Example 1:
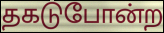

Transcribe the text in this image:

தகடுபோன்ற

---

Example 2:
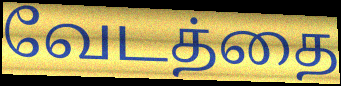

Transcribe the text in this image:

வேடத்தை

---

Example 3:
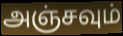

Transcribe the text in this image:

அஞ்சவும்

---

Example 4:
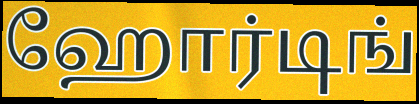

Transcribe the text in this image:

ஹோர்டிங்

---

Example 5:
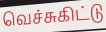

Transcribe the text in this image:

வெச்சுகிட்டு